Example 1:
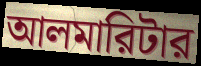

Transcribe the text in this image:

আলমারিটার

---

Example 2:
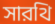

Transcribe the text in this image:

সারথি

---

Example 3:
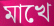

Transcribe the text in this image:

মাখে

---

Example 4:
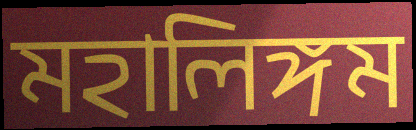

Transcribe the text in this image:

মহালিঙ্গম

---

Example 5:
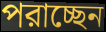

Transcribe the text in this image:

পরাচ্ছেন